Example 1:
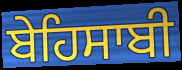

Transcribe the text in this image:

ਬੇਹਿਸਾਬੀ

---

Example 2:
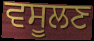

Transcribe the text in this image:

ਵਸੂਲਣ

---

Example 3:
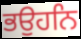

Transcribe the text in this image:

ਭਉਹਨਿ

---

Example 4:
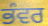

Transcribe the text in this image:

ਭੰਵਰ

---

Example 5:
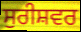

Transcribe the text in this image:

ਸੁਰੀਸ਼ਵਰ